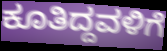
ಕೂತಿದ್ದವಳಿಗೆ